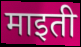
माइती